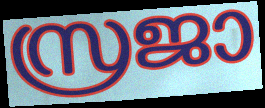
സ്രജാ